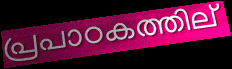
പ്രപാഠകത്തില്